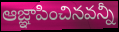
ఆజ్ఞాపించినవన్నీ